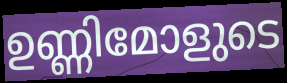
ഉണ്ണിമോളുടെ